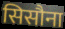
सिसौना